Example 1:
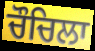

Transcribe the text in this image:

ਚੌਚਿਲਾ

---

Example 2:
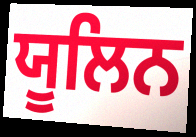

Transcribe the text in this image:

ਯੂਲਿਨ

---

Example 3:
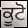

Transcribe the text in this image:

ਕੂਟੋ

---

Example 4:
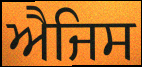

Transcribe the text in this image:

ਐਜਿਸ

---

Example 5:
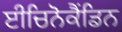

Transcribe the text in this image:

ਈਚਿਨੋਕੈਂਡਿਨ